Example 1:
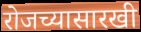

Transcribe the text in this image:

रोजच्यासारखी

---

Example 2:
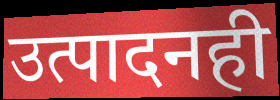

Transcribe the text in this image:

उत्पादनही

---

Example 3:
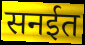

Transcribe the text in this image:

सनईत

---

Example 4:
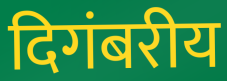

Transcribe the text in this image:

दिगंबरीय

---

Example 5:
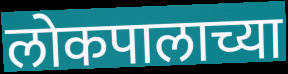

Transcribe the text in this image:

लोकपालाच्या